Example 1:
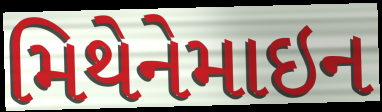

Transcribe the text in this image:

મિથેનેમાઇન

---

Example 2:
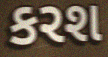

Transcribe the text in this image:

કરશ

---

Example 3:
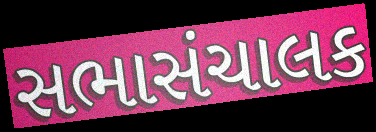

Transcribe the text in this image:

સભાસંચાલક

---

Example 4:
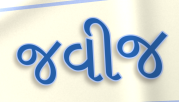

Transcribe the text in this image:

જવીજ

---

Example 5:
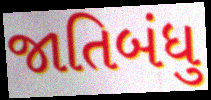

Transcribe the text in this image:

જાતિબંધુ